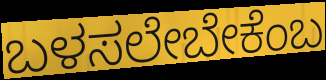
ಬಳಸಲೇಬೇಕೆಂಬ